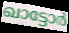
ഖാട്ടോർ